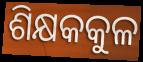
ଶିକ୍ଷକକୁଳ